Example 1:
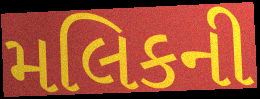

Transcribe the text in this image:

મલિકની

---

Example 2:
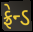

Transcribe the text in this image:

ફ્રેન્ડ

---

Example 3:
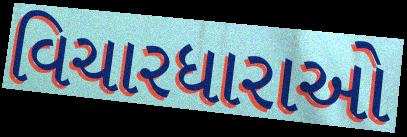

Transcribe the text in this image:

વિચારધારાઓ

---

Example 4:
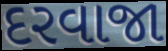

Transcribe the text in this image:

દરવાજા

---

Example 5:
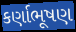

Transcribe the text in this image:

કર્ણાભૂષણ